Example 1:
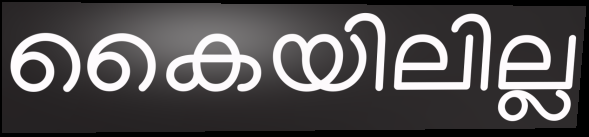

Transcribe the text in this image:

കൈയിലില്ല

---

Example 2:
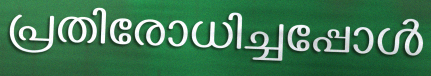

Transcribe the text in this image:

പ്രതിരോധിച്ചപ്പോൾ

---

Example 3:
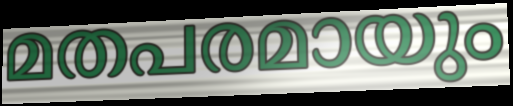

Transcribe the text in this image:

മതപരമായും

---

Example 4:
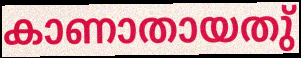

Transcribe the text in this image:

കാണാതായതു്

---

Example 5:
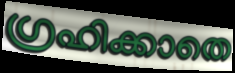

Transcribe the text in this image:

ഗ്രഹിക്കാതെ